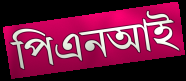
পিএনআই